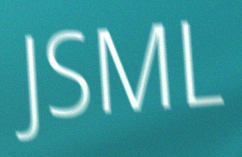
JSML